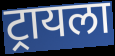
ट्रायला